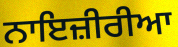
ਨਾਇਜ਼ੀਰੀਆ